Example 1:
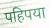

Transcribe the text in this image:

पहिपया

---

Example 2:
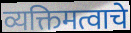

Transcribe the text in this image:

व्यक्तिमत्वाचे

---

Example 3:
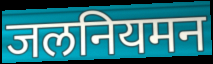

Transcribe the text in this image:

जलनियमन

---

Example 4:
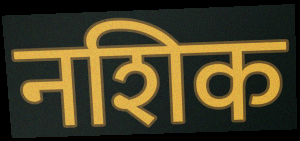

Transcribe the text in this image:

नशिक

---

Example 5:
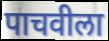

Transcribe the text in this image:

पाचवीला